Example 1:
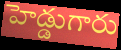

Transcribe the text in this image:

హెడ్డుగారు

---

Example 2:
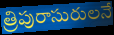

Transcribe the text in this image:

త్రిపురాసురులనే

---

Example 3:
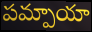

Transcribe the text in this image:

పమ్పాయా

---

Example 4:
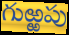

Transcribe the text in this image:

గుఱ్ఱపు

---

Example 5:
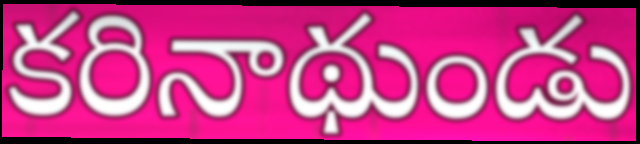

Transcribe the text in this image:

కరినాథుండు